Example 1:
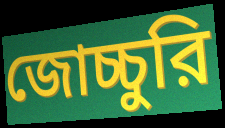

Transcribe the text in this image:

জোচ্চুরি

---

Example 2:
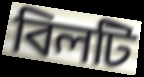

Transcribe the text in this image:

বিলটি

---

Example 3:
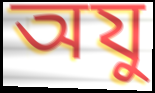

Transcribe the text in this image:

অযু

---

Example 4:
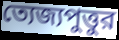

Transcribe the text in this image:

ত্যেজ্যপুত্তুর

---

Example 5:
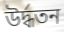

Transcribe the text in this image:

উর্দ্ধতন